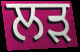
ਲੜ